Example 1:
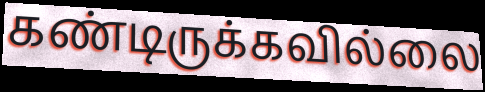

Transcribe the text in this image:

கண்டிருக்கவில்லை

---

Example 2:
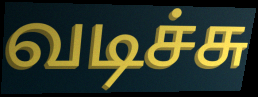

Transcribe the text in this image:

வடிச்சு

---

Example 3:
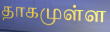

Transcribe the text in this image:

தாகமுள்ள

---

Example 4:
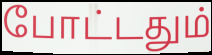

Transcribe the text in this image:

போட்டதும்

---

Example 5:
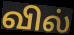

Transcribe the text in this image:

வில்